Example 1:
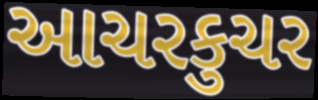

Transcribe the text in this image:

આચરકુચર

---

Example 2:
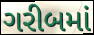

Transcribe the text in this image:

ગરીબમાં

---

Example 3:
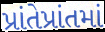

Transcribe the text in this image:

પ્રાંતેપ્રાંતમાં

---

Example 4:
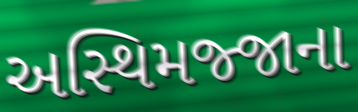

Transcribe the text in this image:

અસ્થિમજ્જાના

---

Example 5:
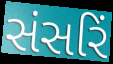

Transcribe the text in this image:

સંસરિં